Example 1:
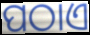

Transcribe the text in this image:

ପଠାଏ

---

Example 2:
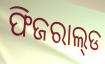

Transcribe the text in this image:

ଫିଜରାଲ୍‌ଡ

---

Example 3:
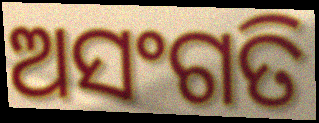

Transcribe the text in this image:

ଅସଂଗତି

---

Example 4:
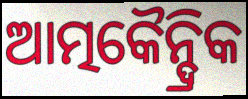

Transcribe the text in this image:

ଆତ୍ମକୈନ୍ଦ୍ରିକ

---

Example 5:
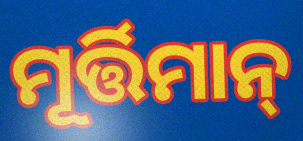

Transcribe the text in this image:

ମୂର୍ତ୍ତିମାନ୍